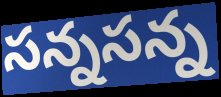
సన్నసన్న